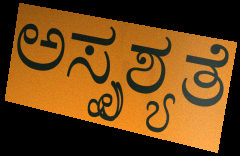
ಅಸ್ಪೃಶ್ಯತೆ